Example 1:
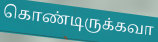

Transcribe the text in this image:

கொண்டிருக்கவா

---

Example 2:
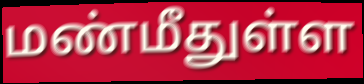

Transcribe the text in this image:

மண்மீதுள்ள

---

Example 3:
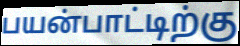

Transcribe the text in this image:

பயன்பாட்டிற்கு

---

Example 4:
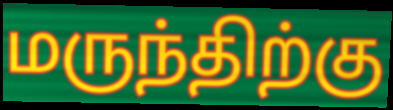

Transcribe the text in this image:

மருந்திற்கு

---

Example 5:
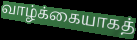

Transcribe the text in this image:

வாழ்க்கையாகத்